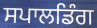
ਸਪਾਲਡਿੰਗ